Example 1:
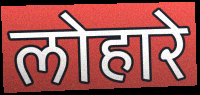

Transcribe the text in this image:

लोहारे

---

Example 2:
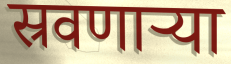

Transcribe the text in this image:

स्रवणाऱ्या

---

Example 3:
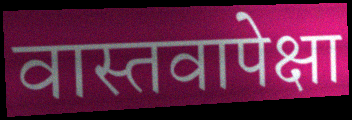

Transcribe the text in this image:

वास्तवापेक्षा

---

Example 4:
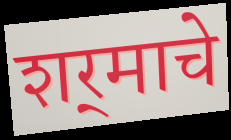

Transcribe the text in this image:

शर्माचे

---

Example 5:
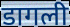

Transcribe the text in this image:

डागली